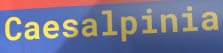
Caesalpinia